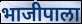
भाजीपाला